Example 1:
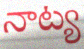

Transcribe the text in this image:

నాట్య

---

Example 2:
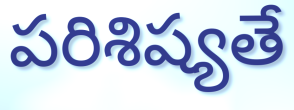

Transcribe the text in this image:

పరిశిష్యతే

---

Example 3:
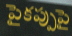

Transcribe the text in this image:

పైకప్పుపై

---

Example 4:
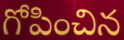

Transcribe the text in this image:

గోపించిన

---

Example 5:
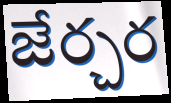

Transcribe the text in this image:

జేర్చర